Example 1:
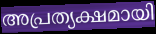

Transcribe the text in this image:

അപ്രത്യക്ഷമായി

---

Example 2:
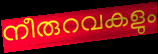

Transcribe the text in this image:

നീരുറവകളും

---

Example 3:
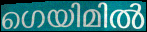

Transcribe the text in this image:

ഗെയിമിൽ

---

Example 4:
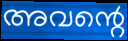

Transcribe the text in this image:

അവന്റെ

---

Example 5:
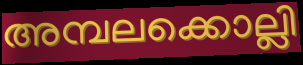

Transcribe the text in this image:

അമ്പലക്കൊല്ലി